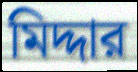
মিদ্দার